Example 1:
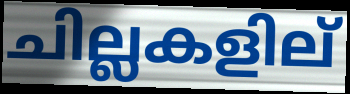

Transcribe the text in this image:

ചില്ലകളില്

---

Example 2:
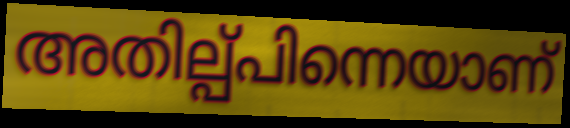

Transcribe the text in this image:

അതില്പ്പിന്നെയാണ്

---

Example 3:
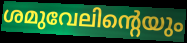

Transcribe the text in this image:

ശമുവേലിന്റെയും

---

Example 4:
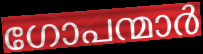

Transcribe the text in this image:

ഗോപന്മാർ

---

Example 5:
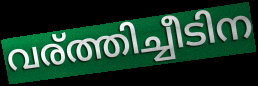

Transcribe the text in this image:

വര്ത്തിച്ചീടിന